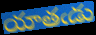
యాతఁడు